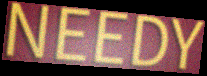
NEEDY